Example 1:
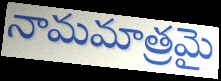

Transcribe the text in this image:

నామమాత్రమై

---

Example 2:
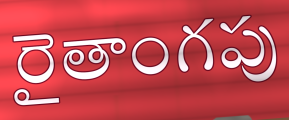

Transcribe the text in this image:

రైతాంగపు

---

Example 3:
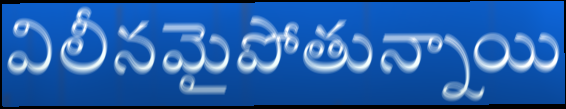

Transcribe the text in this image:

విలీనమైపోతున్నాయి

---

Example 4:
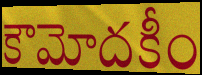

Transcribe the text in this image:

కౌమోదకీం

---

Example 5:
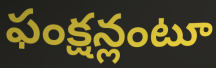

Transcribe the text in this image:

ఫంక్షన్లంటూ